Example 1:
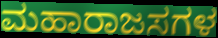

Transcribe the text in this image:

ಮಹಾರಾಜಸಗಳ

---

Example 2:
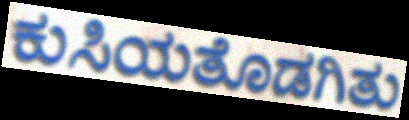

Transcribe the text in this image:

ಕುಸಿಯತೊಡಗಿತು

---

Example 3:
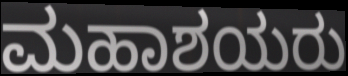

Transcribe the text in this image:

ಮಹಾಶಯರು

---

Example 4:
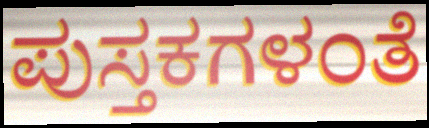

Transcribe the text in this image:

ಪುಸ್ತಕಗಳಂತೆ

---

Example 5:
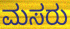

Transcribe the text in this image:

ಮಸರು